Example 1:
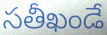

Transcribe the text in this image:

సతీఖండే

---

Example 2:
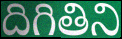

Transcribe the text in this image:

దిగితిని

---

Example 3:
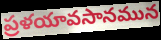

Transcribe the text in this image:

ప్రళయావసానమున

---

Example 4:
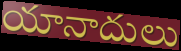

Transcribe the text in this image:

యానాదులు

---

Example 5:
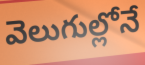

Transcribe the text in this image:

వెలుగుల్లోనే